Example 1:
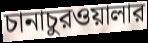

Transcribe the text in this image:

চানাচুরওয়ালার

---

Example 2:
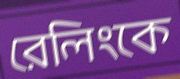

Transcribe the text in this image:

রেলিংকে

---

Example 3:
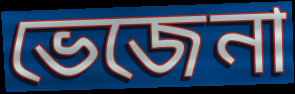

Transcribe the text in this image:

ভেজেনা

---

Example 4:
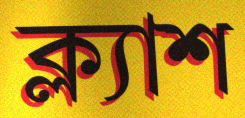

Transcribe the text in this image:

ক্ল্যাশ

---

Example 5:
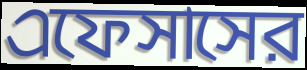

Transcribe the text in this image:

এফেসাসের